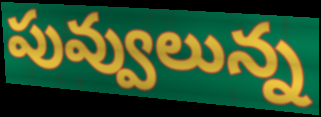
పువ్వులున్న